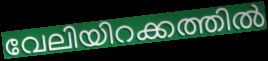
വേലിയിറക്കത്തിൽ